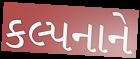
કલ્પનાને